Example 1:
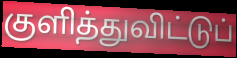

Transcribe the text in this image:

குளித்துவிட்டுப்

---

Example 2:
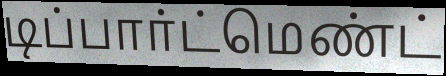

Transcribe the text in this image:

டிப்பார்ட்மெண்ட்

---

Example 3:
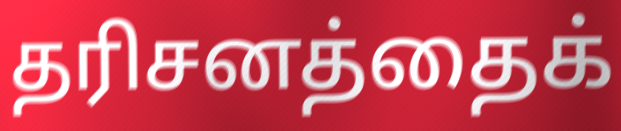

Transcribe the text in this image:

தரிசனத்தைக்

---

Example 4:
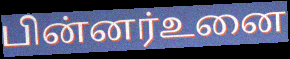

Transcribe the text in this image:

பின்னர்உனை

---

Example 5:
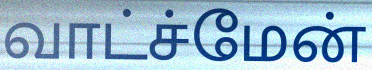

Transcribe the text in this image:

வாட்ச்மேன்